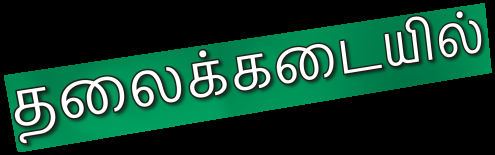
தலைக்கடையில்